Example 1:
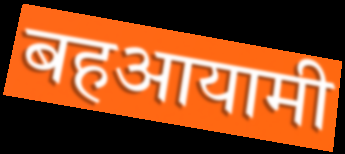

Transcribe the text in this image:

बहआयामी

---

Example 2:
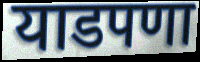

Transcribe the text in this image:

याडपणा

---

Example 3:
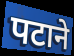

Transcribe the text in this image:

पटाने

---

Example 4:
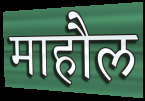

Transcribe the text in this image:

माहौल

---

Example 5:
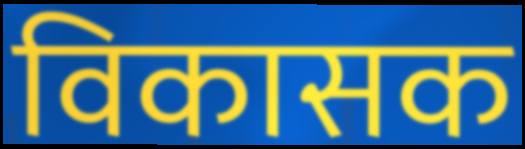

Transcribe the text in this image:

विकासक